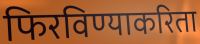
फिरविण्याकरिता